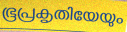
ഭൂപ്രകൃതിയേയും